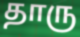
தாரு